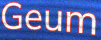
Geum